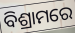
ବିଶ୍ରାମରେ